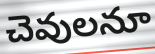
చెవులనూ